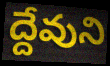
ద్దేవుని